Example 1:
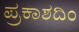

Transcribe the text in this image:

ಪ್ರಕಾಶದಿಂ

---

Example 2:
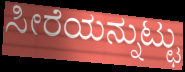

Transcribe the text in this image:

ಸೀರೆಯನ್ನುಟ್ಟು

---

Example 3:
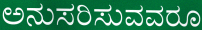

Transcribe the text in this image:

ಅನುಸರಿಸುವವರೂ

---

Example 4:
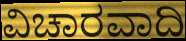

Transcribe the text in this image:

ವಿಚಾರವಾದಿ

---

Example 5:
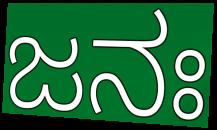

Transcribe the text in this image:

ಜನಃ